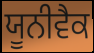
ਯੂਨੀਵੈਕ